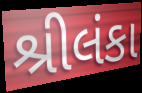
શ્રીલંકા